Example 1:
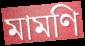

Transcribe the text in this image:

মামণি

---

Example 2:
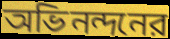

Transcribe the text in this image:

অভিনন্দনের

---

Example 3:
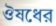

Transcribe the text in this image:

ঔষধের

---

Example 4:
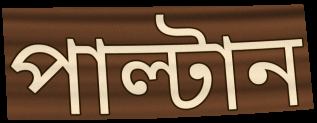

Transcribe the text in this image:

পাল্টান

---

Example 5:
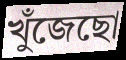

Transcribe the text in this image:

খুঁজেছো